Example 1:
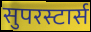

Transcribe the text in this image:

सुपरस्टार्स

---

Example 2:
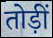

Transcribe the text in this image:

तोड़ीं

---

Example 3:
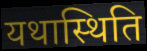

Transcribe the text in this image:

यथास्थिति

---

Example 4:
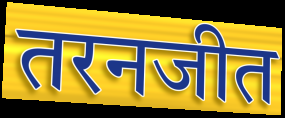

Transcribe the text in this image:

तरनजीत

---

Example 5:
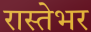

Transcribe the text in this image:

रास्तेभर